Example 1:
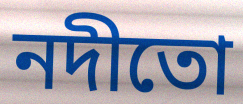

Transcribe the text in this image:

নদীতো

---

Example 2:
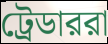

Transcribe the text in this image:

ট্রেডাররা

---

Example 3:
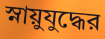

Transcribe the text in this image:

স্নায়ুযুদ্ধের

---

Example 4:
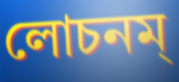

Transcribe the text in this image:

লোচনম্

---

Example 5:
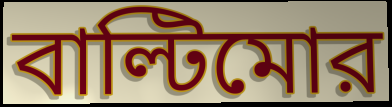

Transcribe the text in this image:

বাল্টিমোর